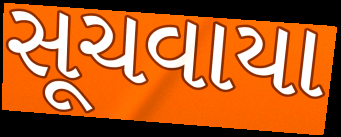
સૂચવાયા